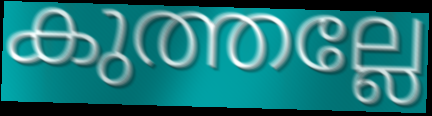
കുത്തല്ലേ